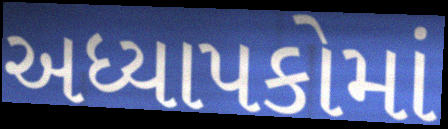
અધ્યાપકોમાં